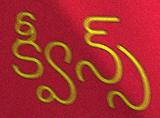
క్వీన్స్